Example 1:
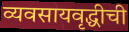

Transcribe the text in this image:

व्यवसायवृद्धीची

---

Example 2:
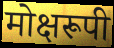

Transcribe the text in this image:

मोक्षरूपी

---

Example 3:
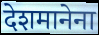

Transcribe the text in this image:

देशमानेना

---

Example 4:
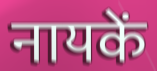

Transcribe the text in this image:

नायकें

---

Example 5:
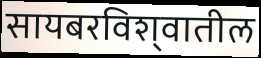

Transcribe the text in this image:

सायबरविश्वातील